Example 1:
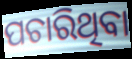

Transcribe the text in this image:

ପଚାରିଥିବା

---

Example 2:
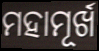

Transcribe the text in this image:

ମହାମୂର୍ଖ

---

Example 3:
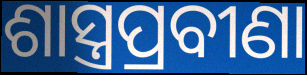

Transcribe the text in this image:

ଶାସ୍ତ୍ରପ୍ରବୀଣା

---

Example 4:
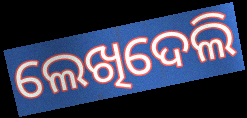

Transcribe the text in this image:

ଲେଖିଦେଲି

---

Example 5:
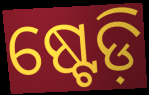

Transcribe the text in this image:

ଷ୍ଟେଡ଼ି